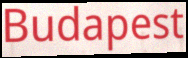
Budapest